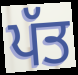
ਪੱਤ